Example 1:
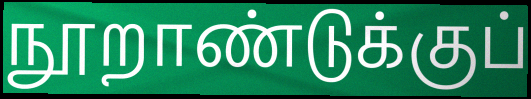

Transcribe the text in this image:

நூறாண்டுக்குப்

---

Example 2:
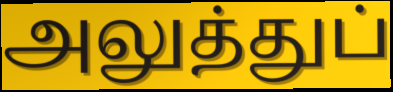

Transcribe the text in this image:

அலுத்துப்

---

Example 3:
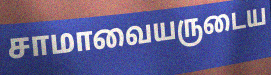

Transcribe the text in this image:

சாமாவையருடைய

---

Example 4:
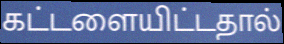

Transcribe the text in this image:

கட்டளையிட்டதால்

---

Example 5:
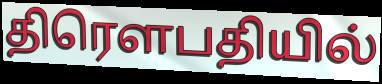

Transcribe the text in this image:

திரௌபதியில்